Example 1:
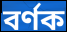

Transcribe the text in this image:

বর্ণক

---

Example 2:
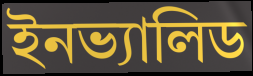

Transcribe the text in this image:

ইনভ্যালিড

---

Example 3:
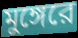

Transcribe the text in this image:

মুঙ্গেরে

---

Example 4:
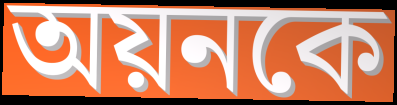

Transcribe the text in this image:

অয়নকে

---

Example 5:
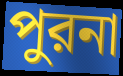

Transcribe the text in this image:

পুরনা